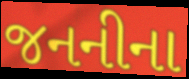
જનનીના